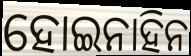
ହୋଇନାହିନ